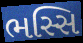
ભસ્સિ